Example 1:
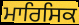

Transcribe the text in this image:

ਮਾਰਿਸਿਕ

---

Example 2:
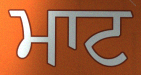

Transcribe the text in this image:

ਮਾਟ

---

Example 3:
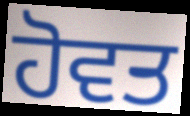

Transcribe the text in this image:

ਹੋਵਤ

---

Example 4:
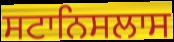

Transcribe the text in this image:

ਸਟਾਨਿਸਲਾਸ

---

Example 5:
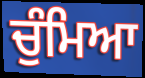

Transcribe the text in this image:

ਚੁੰਮਿਆ